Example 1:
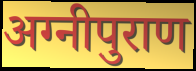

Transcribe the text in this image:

अग्नीपुराण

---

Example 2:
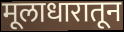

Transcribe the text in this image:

मूलाधारातून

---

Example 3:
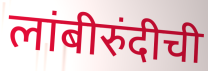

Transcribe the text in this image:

लांबीरुंदीची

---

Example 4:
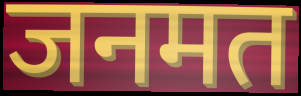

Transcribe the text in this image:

जनमत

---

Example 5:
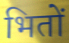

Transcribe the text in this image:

भितों